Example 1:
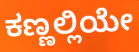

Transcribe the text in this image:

ಕಣ್ಣಲ್ಲಿಯೇ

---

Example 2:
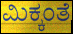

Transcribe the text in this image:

ಮಿಕ್ಕಂತೆ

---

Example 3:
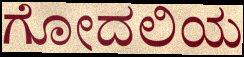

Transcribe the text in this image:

ಗೋದಲಿಯ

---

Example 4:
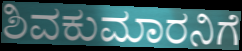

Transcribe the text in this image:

ಶಿವಕುಮಾರನಿಗೆ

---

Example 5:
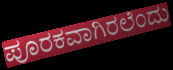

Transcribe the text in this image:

ಪೂರಕವಾಗಿರಲೆಂದು